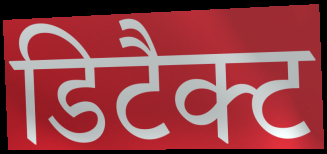
डिटैक्ट